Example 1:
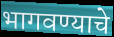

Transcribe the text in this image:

भागवण्याचे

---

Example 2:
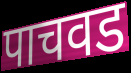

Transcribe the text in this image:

पाचवड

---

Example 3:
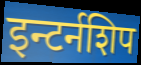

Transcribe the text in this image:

इन्टर्नशिप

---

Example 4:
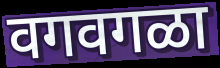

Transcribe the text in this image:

वगवगळा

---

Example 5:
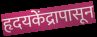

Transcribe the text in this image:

हृदयकेंद्रापासून